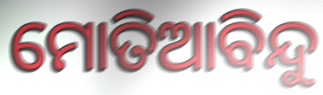
ମୋତିଆବିନ୍ଦୁ